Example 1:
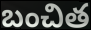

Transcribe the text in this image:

బంచిత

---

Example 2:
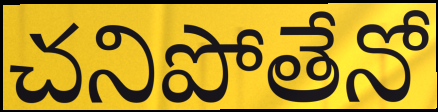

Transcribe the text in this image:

చనిపోతేనో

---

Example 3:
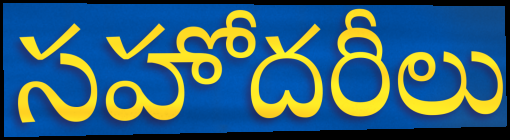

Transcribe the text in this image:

సహోదరీలు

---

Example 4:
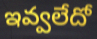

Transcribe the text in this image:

ఇవ్వలేదో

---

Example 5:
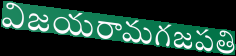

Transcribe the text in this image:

విజయరామగజపతి